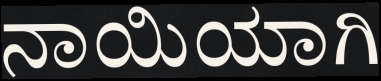
ನಾಯಿಯಾಗಿ